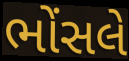
ભોંસલે